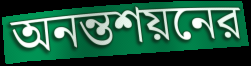
অনন্তশয়নের